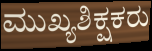
ಮುಖ್ಯಶಿಕ್ಷಕರು